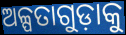
ଅଳ୍ପତାଗୁଡ଼ାକୁ